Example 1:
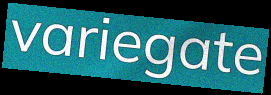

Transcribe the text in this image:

variegate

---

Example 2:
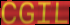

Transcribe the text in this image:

CGIL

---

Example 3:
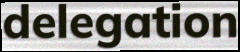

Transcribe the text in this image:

delegation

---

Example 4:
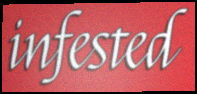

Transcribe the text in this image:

infested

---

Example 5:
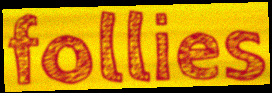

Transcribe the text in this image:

follies